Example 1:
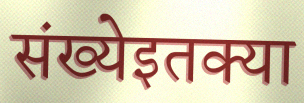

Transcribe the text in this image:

संख्येइतक्या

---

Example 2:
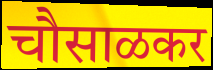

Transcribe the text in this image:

चौसाळकर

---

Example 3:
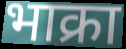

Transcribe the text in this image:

भाक्रा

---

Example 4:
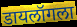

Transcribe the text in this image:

डायलॉगला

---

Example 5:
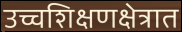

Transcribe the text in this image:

उच्चशिक्षणक्षेत्रात